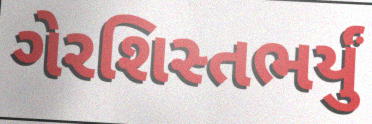
ગેરશિસ્તભર્યું